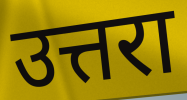
उत्तरा